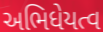
અભિધેયત્વ